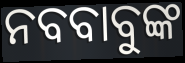
ନବବାବୁଙ୍କ